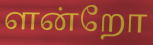
ளன்றோ